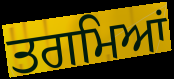
ਤਗਮਿਆਂ